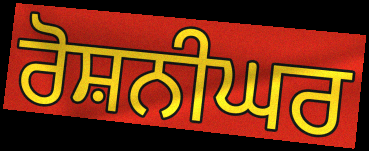
ਰੋਸ਼ਨੀਘਰ